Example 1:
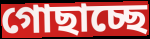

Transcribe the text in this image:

গোছাচ্ছে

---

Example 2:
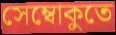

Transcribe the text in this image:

সেম্বোকুতে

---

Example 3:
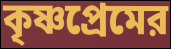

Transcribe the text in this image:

কৃষ্ণপ্রেমের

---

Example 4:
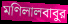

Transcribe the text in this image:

মণিলালবাবুর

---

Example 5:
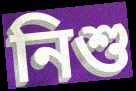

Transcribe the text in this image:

নিশু